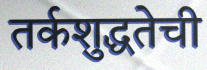
तर्कशुद्धतेची